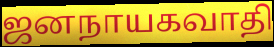
ஜனநாயகவாதி